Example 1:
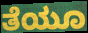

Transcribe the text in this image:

ತೆಯೂ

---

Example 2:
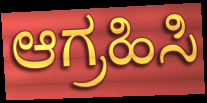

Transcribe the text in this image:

ಆಗ್ರಹಿಸಿ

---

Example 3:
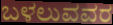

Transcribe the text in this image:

ಬಳಲುವವರ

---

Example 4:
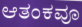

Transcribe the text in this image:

ಆತಂಕವೂ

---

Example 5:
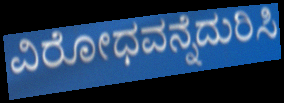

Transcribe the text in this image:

ವಿರೋಧವನ್ನೆದುರಿಸಿ